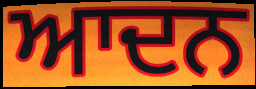
ਆਦਨ